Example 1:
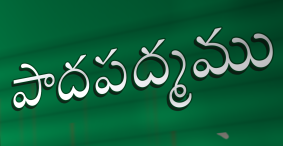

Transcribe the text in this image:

పాదపద్మము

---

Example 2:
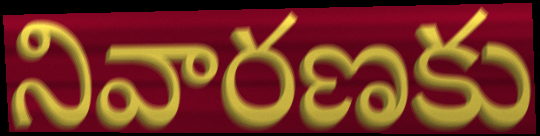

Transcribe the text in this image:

నివారణకు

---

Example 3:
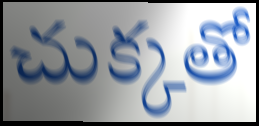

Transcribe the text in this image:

చుక్కతో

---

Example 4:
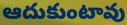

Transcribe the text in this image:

ఆదుకుంటావు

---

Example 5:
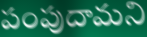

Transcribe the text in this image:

పంపుదామని